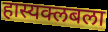
हास्यक्लबला